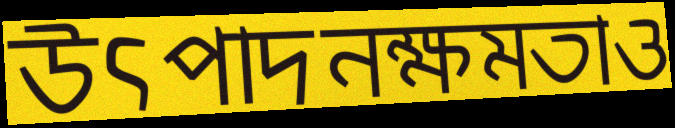
উৎপাদনক্ষমতাও